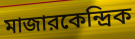
মাজারকেন্দ্রিক